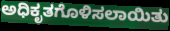
ಅಧಿಕೃತಗೊಳಿಸಲಾಯಿತು